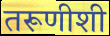
तरूणीशी